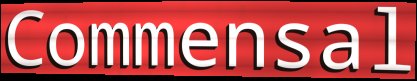
Commensal